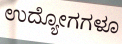
ಉದ್ಯೋಗಗಳೂ